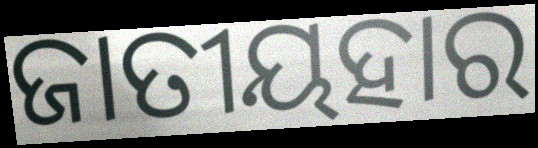
ଜାତୀୟହାର